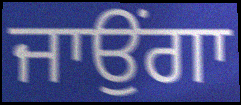
ਜਾਉਂਗਾ